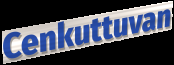
Cenkuttuvan